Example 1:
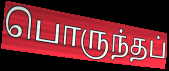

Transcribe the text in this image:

பொருந்தப்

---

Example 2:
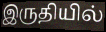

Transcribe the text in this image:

இருதியில்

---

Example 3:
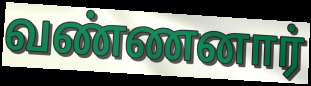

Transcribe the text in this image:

வண்ணனார்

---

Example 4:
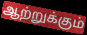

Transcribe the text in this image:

ஆற்றுக்கும்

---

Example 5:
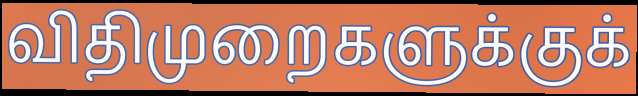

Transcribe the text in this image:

விதிமுறைகளுக்குக்